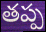
తప్ప